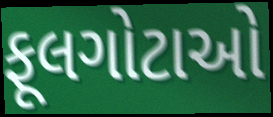
ફૂલગોટાઓ